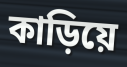
কাড়িয়ে